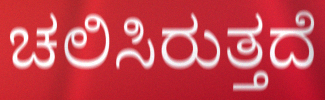
ಚಲಿಸಿರುತ್ತದೆ